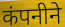
कंपनीने